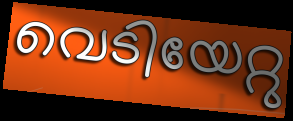
വെടിയേറ്റു